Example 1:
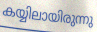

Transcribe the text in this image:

കയ്യിലായിരുന്നു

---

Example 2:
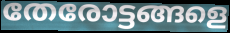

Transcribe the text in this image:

തേരോട്ടങ്ങളെ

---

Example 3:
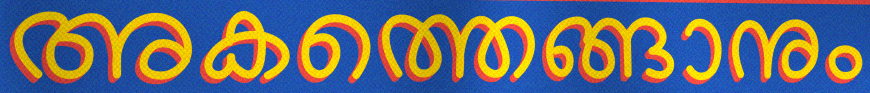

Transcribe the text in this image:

അകത്തെങ്ങാനും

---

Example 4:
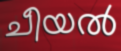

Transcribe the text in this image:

ചീയൽ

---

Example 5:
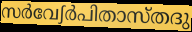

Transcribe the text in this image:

സർവേഽർപിതാസ്തദു